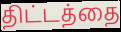
திட்டத்தை